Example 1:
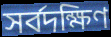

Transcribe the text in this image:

সর্বদক্ষিণ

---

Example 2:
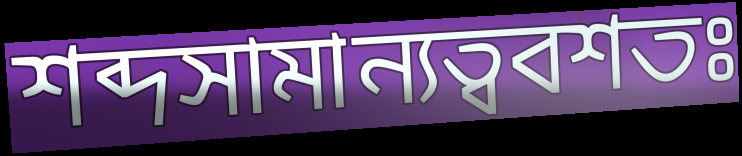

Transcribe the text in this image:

শব্দসামান্যত্ববশতঃ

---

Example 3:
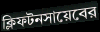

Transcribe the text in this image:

ক্লিফটনসায়েবের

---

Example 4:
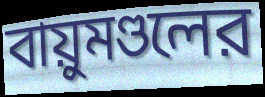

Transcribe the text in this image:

বায়ুমণ্ডলের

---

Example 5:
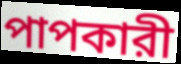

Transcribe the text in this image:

পাপকারী